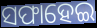
ସଫାହେଇ